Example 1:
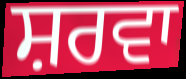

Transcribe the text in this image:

ਸ਼ਰਵਾ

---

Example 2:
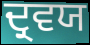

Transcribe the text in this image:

ਦ੍ਰਵਯ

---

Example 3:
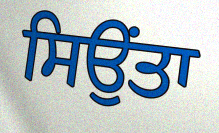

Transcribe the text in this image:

ਸਿਉਂਤਾ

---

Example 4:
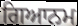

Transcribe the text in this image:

ਗਿਆਨਮ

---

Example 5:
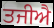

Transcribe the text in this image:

ਤਜੀਐ